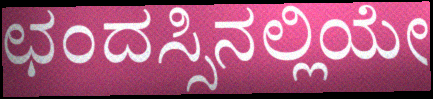
ಛಂದಸ್ಸಿನಲ್ಲಿಯೇ